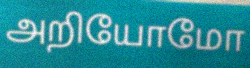
அறியோமோ